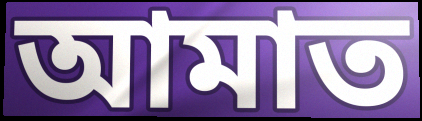
আমাত